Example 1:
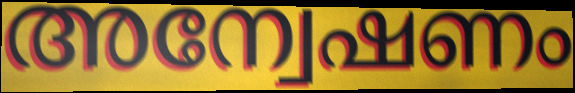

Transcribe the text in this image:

അന്വേഷണം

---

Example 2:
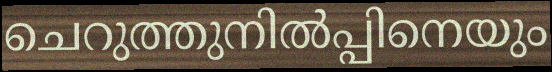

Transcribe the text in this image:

ചെറുത്തുനിൽപ്പിനെയും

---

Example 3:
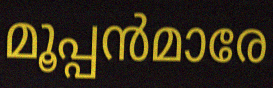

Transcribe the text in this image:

മൂപ്പൻമാരേ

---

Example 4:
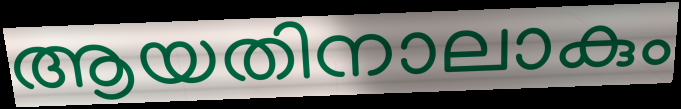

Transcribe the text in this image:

ആയതിനാലാകും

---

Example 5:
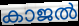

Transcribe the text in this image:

കാജൽ